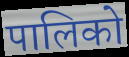
पालिको